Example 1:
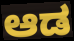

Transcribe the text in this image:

ಆಡ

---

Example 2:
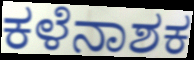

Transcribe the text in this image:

ಕಳೆನಾಶಕ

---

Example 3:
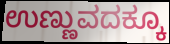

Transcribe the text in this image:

ಉಣ್ಣುವದಕ್ಕೂ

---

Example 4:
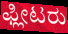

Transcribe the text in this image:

ಫ್ಲೀಟರು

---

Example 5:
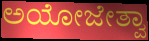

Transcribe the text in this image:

ಅಯೋಜೇತ್ವಾ